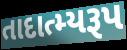
તાદાત્મ્યરૂપ